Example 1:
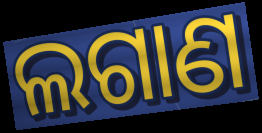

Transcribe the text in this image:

ଲଗାଣ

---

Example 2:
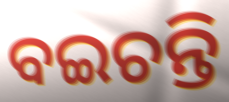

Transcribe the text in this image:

ବଇଚନ୍ତି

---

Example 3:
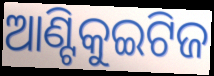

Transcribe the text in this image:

ଆଣ୍ଟିକୁଇଟିଜ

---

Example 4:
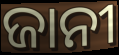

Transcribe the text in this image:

ଜାନୀ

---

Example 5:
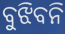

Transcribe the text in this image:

ବୁଝିବନି